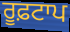
ਰੂਫ਼ਟਾਪ